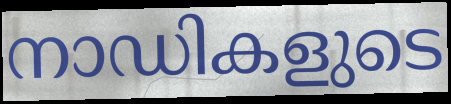
നാഡികളുടെ